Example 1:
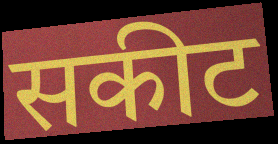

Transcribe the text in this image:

सकीट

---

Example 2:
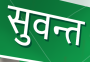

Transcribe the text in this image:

सुवन्त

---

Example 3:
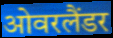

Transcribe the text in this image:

ओवरलैंडर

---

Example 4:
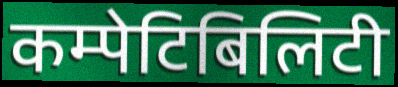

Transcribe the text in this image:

कम्पेटिबिलिटी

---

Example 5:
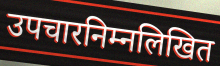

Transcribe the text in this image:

उपचारनिम्नलिखित